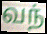
வந்